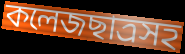
কলেজছাত্রসহ